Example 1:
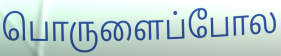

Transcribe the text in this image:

பொருளைப்போல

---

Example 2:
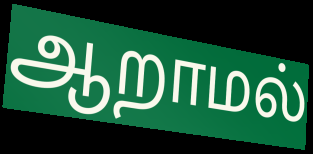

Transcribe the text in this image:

ஆறாமல்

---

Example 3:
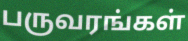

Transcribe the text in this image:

பருவரங்கள்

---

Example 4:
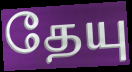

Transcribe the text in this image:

தேயு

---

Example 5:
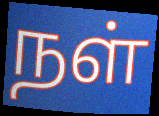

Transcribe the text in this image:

நள்